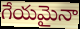
గేయమైనా